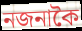
নজনাকৈ